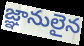
జ్ఞానులైన